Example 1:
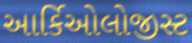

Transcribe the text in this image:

આર્કિઓલોજીસ્ટ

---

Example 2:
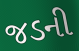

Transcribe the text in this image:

જડની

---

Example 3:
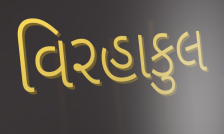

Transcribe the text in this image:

વિરહાકુલ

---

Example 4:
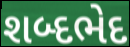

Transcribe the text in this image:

શબ્દભેદ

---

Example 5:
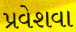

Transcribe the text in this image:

પ્રવેશવા